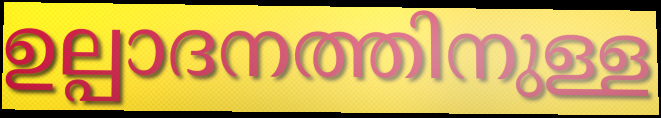
ഉല്പാദനത്തിനുള്ള